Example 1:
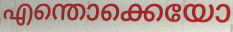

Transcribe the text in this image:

എന്തൊക്കെയോ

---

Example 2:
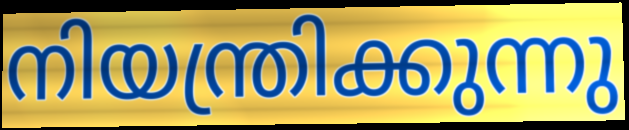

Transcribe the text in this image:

നിയന്ത്രിക്കുന്നു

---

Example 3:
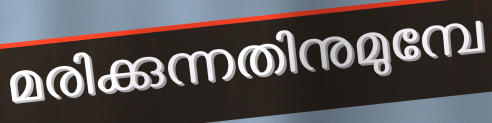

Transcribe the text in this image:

മരിക്കുന്നതിനുമുമ്പേ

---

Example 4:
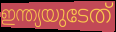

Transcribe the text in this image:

ഇന്ത്യയുടേത്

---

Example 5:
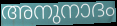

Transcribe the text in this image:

അനുനാദം